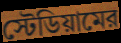
স্টেডিয়ামের